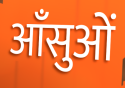
आँसुओं